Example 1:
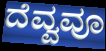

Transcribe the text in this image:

ದೆವ್ವವೂ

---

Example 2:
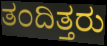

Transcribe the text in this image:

ತಂದಿತ್ತರು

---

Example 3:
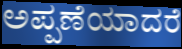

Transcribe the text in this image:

ಅಪ್ಪಣೆಯಾದರೆ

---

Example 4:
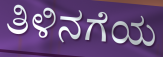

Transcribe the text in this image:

ತಿಳಿನಗೆಯ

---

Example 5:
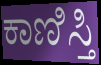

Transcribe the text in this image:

ಕಾಣಿಸ್ತಿ